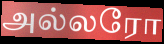
அல்லரோ